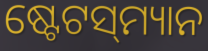
ଷ୍ଟେଟସ୍‌ମ୍ୟାନ